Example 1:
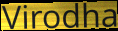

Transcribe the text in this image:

Virodha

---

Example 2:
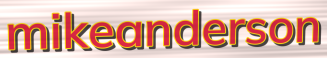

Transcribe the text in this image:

mikeanderson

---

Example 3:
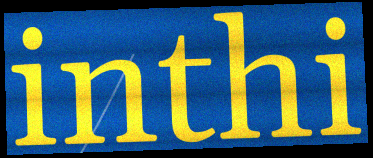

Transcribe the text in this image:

inthi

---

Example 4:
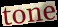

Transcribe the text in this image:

tone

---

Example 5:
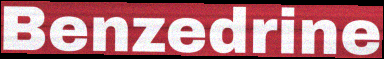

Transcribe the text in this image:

Benzedrine